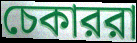
চেকাররা